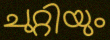
ചുറ്റിയും